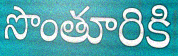
సొంతూరికి